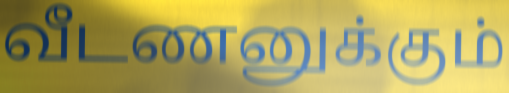
வீடணனுக்கும்